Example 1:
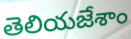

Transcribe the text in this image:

తెలియజేశాం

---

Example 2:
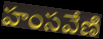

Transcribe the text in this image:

హంసవేణి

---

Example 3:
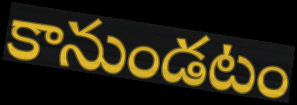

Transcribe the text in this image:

కానుండటం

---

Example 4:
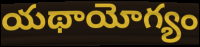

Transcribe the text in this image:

యథాయోగ్యం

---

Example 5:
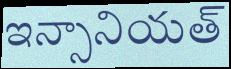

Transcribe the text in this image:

ఇన్సానియత్